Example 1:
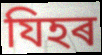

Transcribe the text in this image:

যিহৰ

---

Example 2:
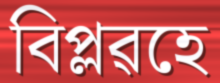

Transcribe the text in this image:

বিপ্লৱহে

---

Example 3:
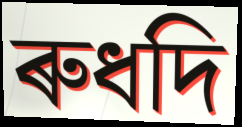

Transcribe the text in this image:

ৰুধদি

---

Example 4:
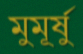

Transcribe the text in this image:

মুমূৰ্ষু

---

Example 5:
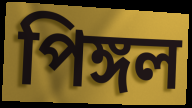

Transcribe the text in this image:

পিঙ্গল